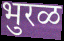
भुरळ